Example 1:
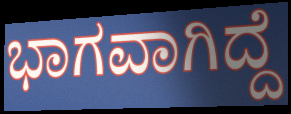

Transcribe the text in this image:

ಭಾಗವಾಗಿದ್ದೆ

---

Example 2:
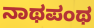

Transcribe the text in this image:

ನಾಥಪಂಥ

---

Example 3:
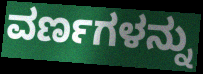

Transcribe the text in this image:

ವರ್ಣಗಳನ್ನು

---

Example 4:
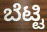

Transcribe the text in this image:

ಬೆಟ್ಟಿ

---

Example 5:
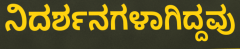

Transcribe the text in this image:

ನಿದರ್ಶನಗಳಾಗಿದ್ದವು